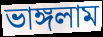
ভাঙ্গলাম